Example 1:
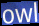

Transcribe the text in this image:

owl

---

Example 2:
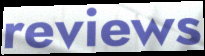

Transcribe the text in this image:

reviews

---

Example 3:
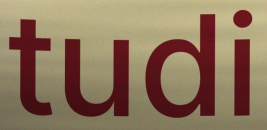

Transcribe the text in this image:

tudi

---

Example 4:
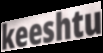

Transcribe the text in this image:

keeshtu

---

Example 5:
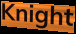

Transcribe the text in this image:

Knight